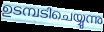
ഉടമ്പടിചെയ്യുന്നു